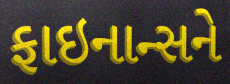
ફાઇનાન્સને